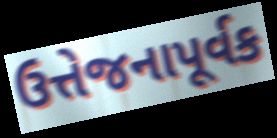
ઉત્તેજનાપૂર્વક